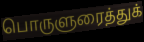
பொருளுரைத்துக்